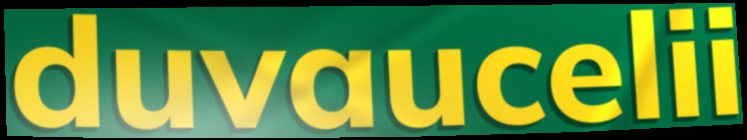
duvaucelii